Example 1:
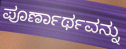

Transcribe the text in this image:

ಪೂರ್ಣಾರ್ಥವನ್ನು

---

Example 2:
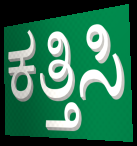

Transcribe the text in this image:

ಕತ್ತಿಸಿ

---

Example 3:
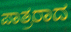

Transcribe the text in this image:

ಪಾತ್ರರಾದ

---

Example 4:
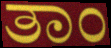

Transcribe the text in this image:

ತಾಂ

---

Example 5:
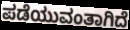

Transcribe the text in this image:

ಪಡೆಯುವಂತಾಗಿದೆ